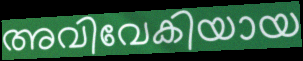
അവിവേകിയായ